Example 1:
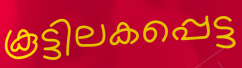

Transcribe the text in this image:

കൂട്ടിലകപ്പെട്ട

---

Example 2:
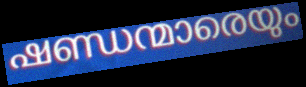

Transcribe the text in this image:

ഷണ്ഡന്മാരെയും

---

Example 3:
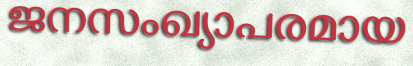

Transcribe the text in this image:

ജനസംഖ്യാപരമായ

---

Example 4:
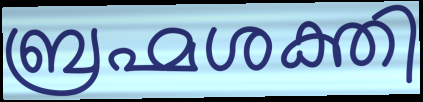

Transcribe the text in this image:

ബ്രഹ്മശക്തി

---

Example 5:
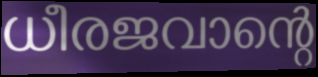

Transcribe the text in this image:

ധീരജവാന്റെ